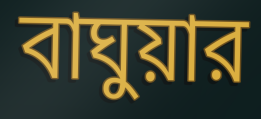
বাঘুয়ার